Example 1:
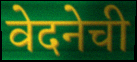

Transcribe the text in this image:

वेदनेची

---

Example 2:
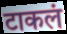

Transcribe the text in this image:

टाकलं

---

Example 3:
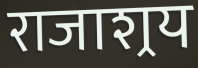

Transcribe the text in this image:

राजाश्रय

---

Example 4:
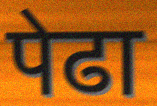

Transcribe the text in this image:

पेढा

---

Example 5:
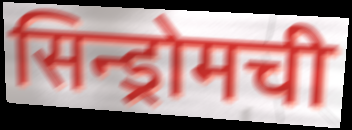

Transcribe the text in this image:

सिन्ड्रोमची